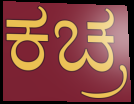
ಕಚ್ರ